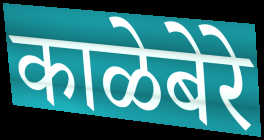
काळेबेरे